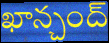
ఖాన్చంద్